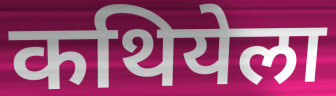
कथियेला